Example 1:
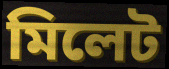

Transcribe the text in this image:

মিলেট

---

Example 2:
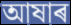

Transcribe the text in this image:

আষাৰ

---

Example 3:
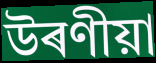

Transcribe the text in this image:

উৰণীয়া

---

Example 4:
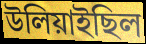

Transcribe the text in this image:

উলিয়াইছিল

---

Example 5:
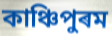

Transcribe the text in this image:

কাঞ্চিপুৰম